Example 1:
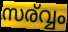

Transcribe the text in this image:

സര്വ്വം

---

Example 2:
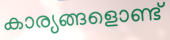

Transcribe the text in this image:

കാര്യങ്ങളൊണ്ട്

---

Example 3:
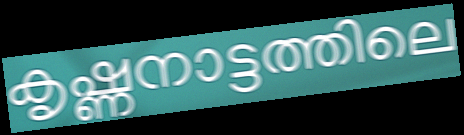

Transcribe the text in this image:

കൃഷ്ണനാട്ടത്തിലെ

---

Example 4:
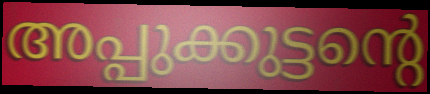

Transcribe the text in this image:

അപ്പുക്കുട്ടന്റെ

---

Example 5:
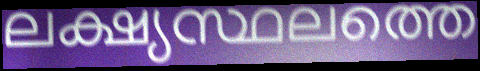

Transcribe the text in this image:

ലക്ഷ്യസ്ഥലത്തെ